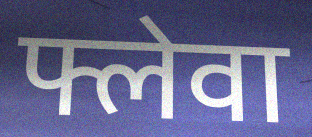
फ्लेवा